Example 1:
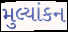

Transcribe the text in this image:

મુલ્યાંકન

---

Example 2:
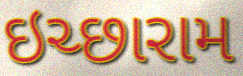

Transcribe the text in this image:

ઇચ્છારામ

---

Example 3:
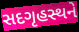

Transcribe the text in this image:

સદગૃહસ્થને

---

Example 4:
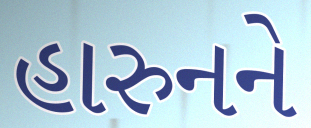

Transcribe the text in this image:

હારુનને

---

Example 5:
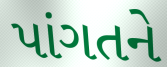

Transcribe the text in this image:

પાંગતને